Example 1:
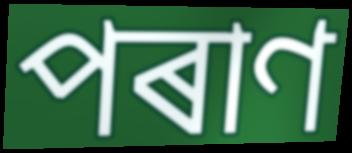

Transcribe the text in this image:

পৰাণ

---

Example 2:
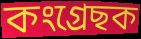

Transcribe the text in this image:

কংগ্ৰেছক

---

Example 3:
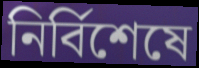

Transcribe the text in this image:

নিৰ্বিশেষে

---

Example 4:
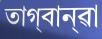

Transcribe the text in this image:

তাগ্‌বান্‌ৱা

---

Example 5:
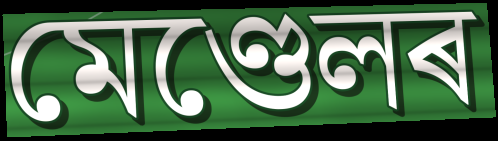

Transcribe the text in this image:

মেণ্ডেলৰ